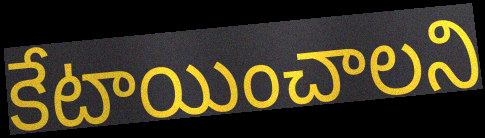
కేటాయించాలని